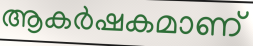
ആകർഷകമാണ്